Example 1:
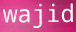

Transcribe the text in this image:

wajid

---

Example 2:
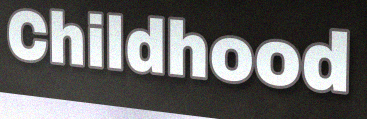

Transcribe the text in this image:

Childhood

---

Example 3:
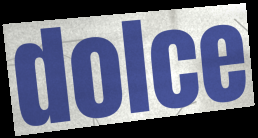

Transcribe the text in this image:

dolce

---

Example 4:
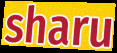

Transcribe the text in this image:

sharu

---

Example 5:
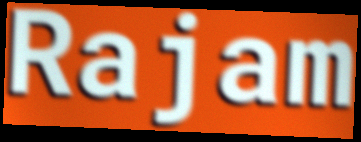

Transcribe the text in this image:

Rajam